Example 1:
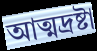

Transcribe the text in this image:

আত্মদ্রষ্টা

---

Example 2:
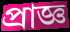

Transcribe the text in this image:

প্রাজ্ঞ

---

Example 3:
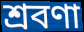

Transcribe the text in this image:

শ্রবণা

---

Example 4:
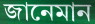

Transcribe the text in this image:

জানেমান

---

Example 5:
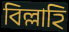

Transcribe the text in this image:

বিল্লাহি